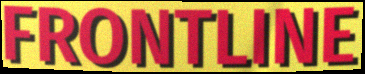
FRONTLINE